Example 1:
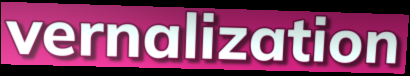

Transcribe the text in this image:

vernalization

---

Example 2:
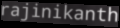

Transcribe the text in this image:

rajinikanth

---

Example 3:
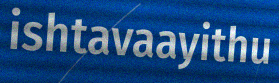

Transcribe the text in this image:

ishtavaayithu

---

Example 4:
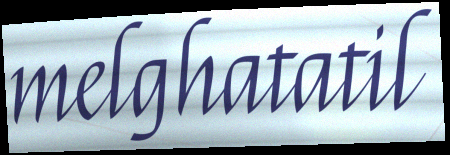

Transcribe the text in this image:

melghatatil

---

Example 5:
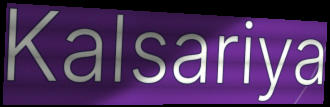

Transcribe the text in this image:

Kalsariya